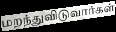
மறந்துவிடுவார்கள்